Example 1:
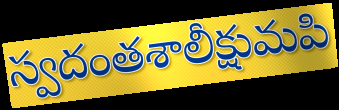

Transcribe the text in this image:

స్వదంతశాలీక్షుమపి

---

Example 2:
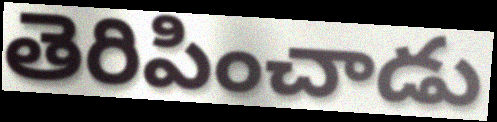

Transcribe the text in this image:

తెరిపించాడు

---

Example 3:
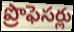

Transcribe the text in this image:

ప్రొఫెసర్లు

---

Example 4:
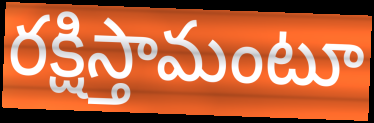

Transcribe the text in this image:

రక్షిస్తామంటూ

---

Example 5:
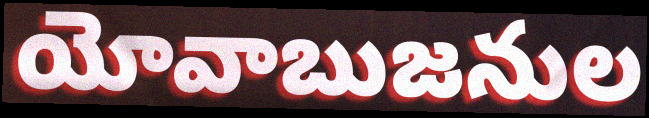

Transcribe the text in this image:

యోవాబుజనుల